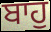
ਬਾਹੁ